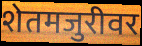
शेतमजुरीवर